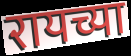
रायच्या